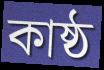
কাষ্ঠ